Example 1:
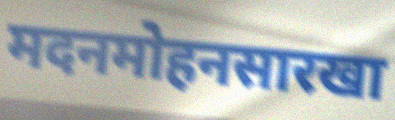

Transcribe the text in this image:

मदनमोहनसारखा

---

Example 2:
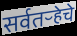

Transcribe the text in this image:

सर्वतऱ्हेचे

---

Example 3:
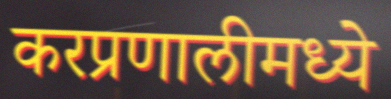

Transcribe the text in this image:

करप्रणालीमध्ये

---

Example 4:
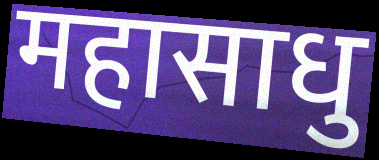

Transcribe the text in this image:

महासाधु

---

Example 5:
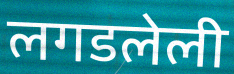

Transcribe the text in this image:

लगडलेली